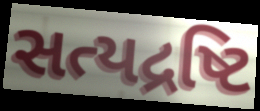
સત્યદ્રષ્ટિ